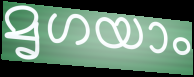
മൃഗയാം